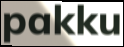
pakku